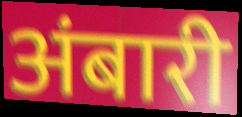
अंबारी